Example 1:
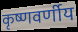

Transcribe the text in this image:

कृष्णवर्णीय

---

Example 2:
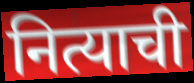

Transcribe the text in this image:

नित्याची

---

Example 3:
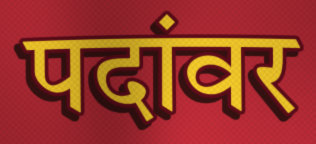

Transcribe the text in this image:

पदांवर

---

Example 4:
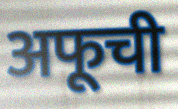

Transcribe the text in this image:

अफूची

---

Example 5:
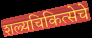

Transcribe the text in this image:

शल्यचिकित्सेचे